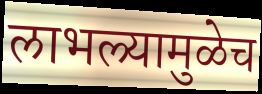
लाभल्यामुळेच